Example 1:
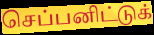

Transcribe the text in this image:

செப்பனிட்டுக்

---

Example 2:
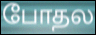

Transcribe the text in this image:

போதல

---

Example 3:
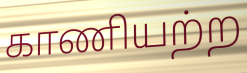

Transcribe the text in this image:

காணியற்ற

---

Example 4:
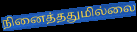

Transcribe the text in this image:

நினைத்ததுமில்லை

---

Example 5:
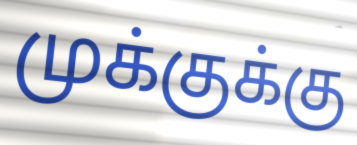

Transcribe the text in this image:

முக்குக்கு